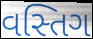
વસ્તિગ